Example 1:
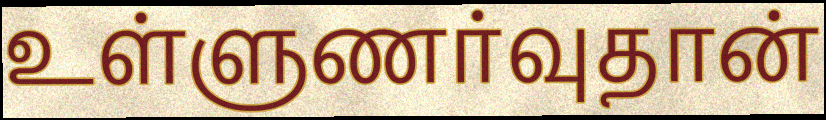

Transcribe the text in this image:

உள்ளுணர்வுதான்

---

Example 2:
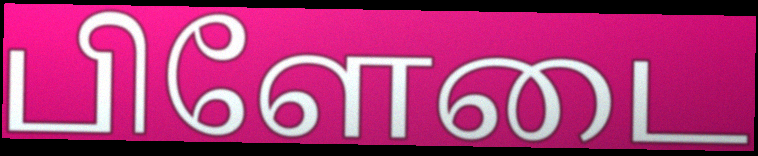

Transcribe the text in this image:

பிளேடை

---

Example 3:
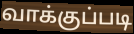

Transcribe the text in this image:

வாக்குப்படி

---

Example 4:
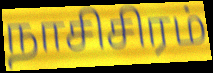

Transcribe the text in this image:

நாசிசிரம்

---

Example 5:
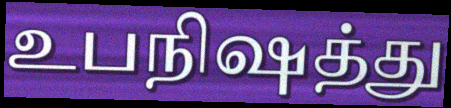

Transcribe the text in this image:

உபநிஷத்து